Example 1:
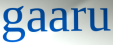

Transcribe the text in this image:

gaaru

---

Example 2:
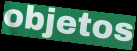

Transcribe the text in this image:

objetos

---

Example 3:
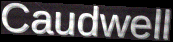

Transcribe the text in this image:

Caudwell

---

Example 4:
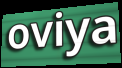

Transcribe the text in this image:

oviya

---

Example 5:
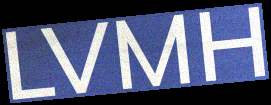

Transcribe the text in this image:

LVMH